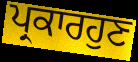
ਪ੍ਰਕਾਰਹੁਣ